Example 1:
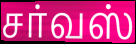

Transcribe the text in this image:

சர்வஸ்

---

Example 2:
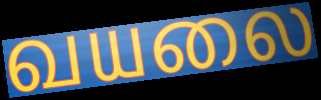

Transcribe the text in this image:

வயலை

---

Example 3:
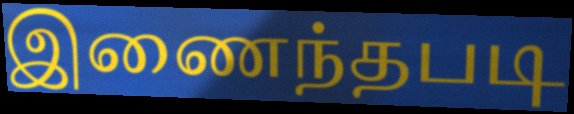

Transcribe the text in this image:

இணைந்தபடி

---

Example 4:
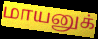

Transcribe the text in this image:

மாயனுக்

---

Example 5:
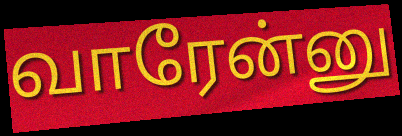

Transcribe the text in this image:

வாரேன்னு